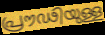
പ്രൗഢിയുള്ള